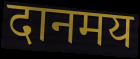
दानमय